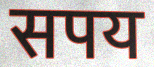
सपय